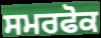
ਸਮਰਫੋਕ